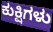
ಕುಕ್ಷಿಗಳು